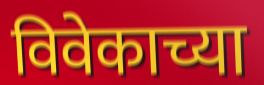
विवेकाच्या